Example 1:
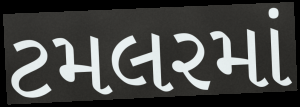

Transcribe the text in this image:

ટમલરમાં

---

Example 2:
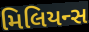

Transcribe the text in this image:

મિલિયન્સ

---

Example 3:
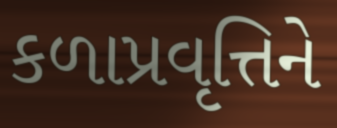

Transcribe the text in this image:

કળાપ્રવૃત્તિને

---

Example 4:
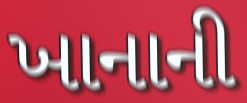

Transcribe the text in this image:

ખાનાની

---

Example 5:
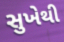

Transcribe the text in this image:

સુખેથી